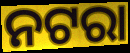
ନଟରା